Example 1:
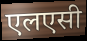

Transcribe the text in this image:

एलएसी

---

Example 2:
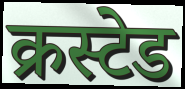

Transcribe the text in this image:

क्रस्टेड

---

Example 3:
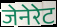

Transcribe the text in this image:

जेनेरेट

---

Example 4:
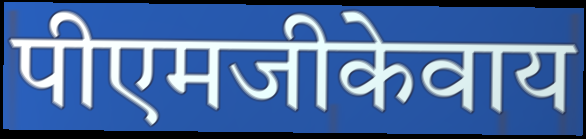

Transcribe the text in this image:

पीएमजीकेवाय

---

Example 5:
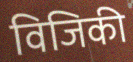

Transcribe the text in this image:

विजिकी